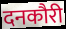
दनकौरी